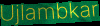
Ujlambkar